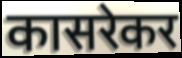
कासरेकर